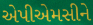
એપીએમસીને